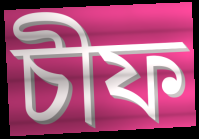
চীফ